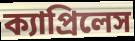
ক্যাপ্রিলেস